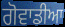
ਗੋਵਾਡੀਆ